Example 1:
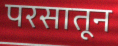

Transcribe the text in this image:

परसातून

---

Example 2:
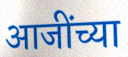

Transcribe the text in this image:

आजींच्या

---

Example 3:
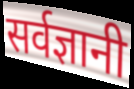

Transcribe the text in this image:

सर्वज्ञानी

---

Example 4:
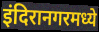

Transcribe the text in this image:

इंदिरानगरमध्ये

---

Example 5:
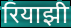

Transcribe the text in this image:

रियाझी